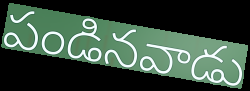
పండినవాడు